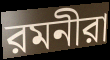
রমনীরা